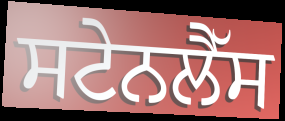
ਸਟੇਨਲੈੱਸ